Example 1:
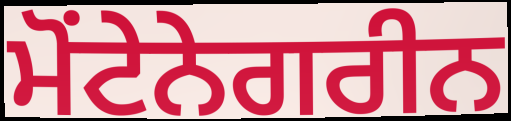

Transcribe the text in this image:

ਮੋਂਟੇਨੇਗਰੀਨ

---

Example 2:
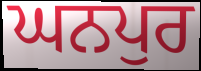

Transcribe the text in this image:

ਘਨਪੁਰ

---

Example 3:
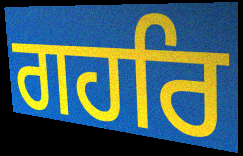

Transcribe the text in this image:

ਗਹਰਿ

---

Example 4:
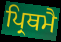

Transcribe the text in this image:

ਪ੍ਰਿਥਮੈ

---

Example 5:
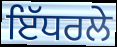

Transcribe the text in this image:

ਇੱਧਰਲੇ